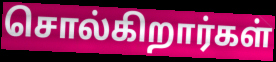
சொல்கிறார்கள்